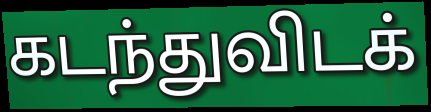
கடந்துவிடக்